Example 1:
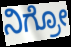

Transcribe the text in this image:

ನಿಗ್ರೋ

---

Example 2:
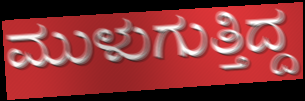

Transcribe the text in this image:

ಮುಳುಗುತ್ತಿದ್ದ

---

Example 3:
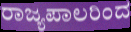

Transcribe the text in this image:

ರಾಜ್ಯಪಾಲರಿಂದ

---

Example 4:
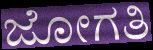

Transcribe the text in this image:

ಜೋಗತಿ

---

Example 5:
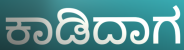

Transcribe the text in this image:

ಕಾಡಿದಾಗ